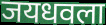
जयधवला